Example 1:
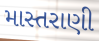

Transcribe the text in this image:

માસ્તરાણી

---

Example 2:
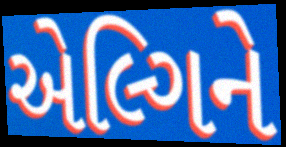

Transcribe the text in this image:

એલ્ગિને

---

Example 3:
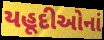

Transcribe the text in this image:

યહૂદીઓનાં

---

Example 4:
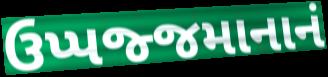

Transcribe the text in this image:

ઉપ્પજ્જમાનાનં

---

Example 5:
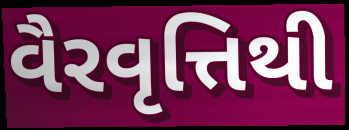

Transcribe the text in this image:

વૈરવૃત્તિથી